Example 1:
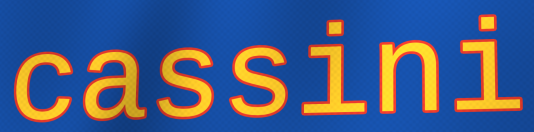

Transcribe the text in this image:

cassini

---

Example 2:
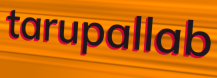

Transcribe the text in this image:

tarupallab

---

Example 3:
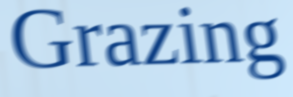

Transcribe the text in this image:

Grazing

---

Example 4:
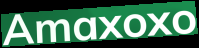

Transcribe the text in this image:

Amaxoxo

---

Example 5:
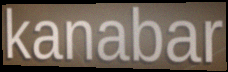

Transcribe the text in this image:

kanabar